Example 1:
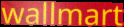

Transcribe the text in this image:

wallmart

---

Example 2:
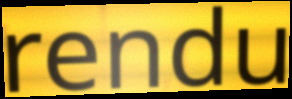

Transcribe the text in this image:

rendu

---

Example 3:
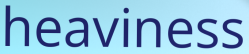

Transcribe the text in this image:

heaviness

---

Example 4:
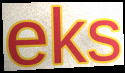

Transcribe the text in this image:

eks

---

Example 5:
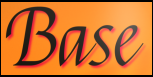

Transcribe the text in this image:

Base